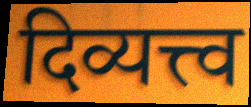
दिव्यत्त्व